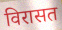
विरासत